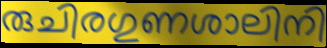
രുചിരഗുണശാലിനി